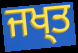
ਜਖ੍ਤ